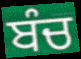
ਬੰਚ